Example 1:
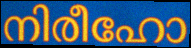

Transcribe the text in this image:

നിരീഹോ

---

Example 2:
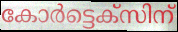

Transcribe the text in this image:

കോർട്ടെക്സിന്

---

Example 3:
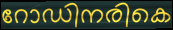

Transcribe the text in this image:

റോഡിനരികെ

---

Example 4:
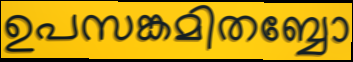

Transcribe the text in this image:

ഉപസങ്കമിതബ്ബോ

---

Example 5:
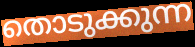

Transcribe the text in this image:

തൊടുക്കുന്ന